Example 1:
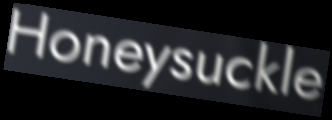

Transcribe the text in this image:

Honeysuckle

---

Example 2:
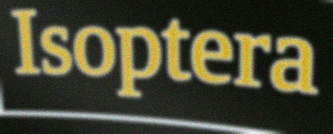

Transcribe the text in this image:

Isoptera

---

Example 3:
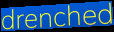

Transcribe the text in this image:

drenched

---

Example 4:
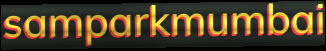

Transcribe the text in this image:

samparkmumbai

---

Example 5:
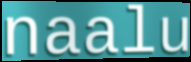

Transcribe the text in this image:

naalu